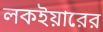
লকইয়ারের